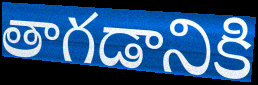
తాగడానికి